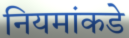
नियमांकडे